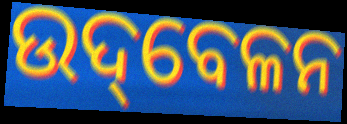
ଉଦ୍‌ବେଳନ